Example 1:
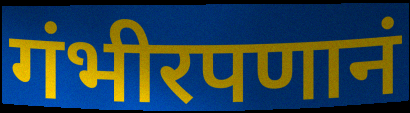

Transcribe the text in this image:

गंभीरपणानं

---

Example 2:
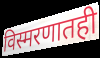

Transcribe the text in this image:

विस्मरणातही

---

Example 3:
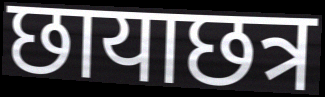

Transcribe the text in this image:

छायाछत्र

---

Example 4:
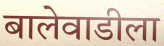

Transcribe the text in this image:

बालेवाडीला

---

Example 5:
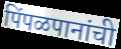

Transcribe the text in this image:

पिंपळपानांची